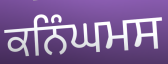
ਕਨਿੰਘਮਸ